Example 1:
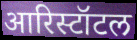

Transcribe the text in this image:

आरिस्टॉटल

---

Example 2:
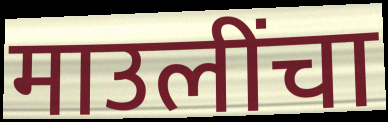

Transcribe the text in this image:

माउलींचा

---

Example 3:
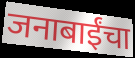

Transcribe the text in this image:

जनाबाईंचा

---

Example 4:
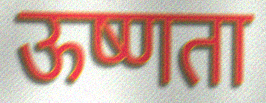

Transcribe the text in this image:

ऊष्णता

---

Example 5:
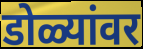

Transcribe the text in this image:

डोळ्यांवर